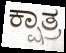
ಕ್ಷಾತ್ರ